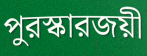
পুরস্কারজয়ী